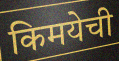
किमयेची